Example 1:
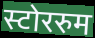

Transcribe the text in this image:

स्टोररुम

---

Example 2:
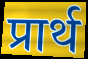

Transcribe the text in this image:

प्रार्थ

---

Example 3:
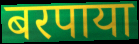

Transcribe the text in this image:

बरपाया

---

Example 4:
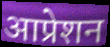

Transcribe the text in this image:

आप्रेशन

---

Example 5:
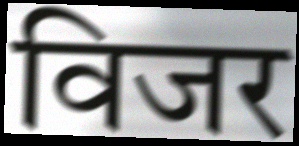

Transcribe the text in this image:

विजर